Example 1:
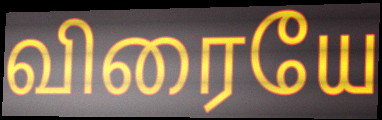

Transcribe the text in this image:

விரையே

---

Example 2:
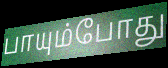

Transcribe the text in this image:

பாயும்போது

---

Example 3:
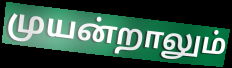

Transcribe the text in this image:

முயன்றாலும்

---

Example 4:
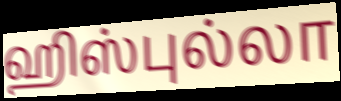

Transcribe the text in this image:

ஹிஸ்புல்லா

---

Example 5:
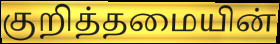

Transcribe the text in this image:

குறித்தமையின்